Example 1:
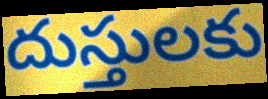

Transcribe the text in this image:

దుస్తులకు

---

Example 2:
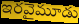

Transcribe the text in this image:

ఇరవైమూడు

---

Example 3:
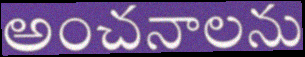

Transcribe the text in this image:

అంచనాలను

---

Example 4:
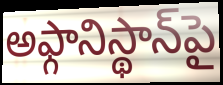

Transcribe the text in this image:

అఫ్గానిస్థాన్‌పై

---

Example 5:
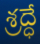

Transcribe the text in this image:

శ్రద్ధే